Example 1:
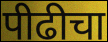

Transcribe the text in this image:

पीढीचा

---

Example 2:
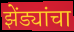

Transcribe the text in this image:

झेंड्यांचा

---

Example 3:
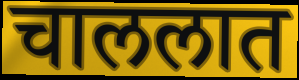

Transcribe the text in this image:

चाललात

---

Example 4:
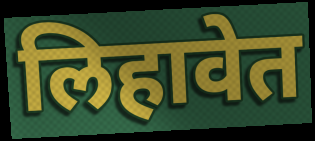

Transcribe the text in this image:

लिहावेत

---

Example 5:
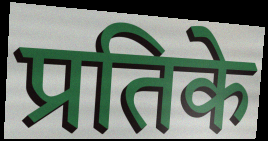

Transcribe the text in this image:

प्रतिके